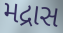
મદ્રાસ